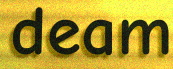
deam